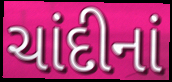
ચાંદીનાં